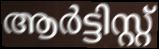
ആർട്ടിസ്റ്റ്